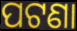
ପଟଣା